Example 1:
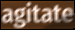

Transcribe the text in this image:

agitate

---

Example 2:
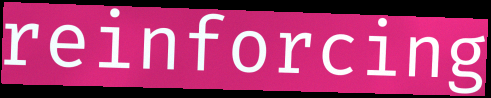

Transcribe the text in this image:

reinforcing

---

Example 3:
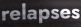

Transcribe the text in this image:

relapses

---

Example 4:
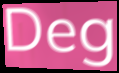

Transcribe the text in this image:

Deg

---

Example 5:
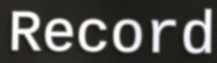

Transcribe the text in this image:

Record